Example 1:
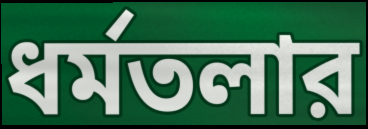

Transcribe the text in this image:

ধর্মতলার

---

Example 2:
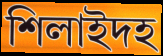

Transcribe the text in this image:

শিলাইদহ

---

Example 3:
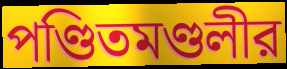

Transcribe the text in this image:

পণ্ডিতমণ্ডলীর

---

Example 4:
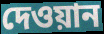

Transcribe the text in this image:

দেওয়ান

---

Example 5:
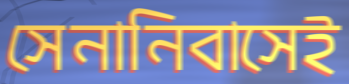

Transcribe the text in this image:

সেনানিবাসেই